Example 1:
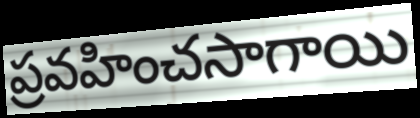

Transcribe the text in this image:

ప్రవహించసాగాయి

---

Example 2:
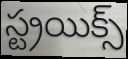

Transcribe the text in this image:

స్ట్రయిక్స్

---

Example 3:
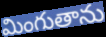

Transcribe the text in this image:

మింగుతాను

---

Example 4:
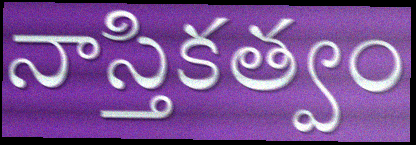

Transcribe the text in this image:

నాస్తికత్వం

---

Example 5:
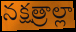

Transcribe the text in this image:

నక్షత్రాల్లా